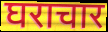
घराचार